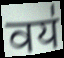
वय॑